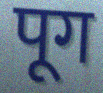
पूग